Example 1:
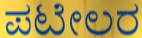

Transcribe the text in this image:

ಪಟೇಲರ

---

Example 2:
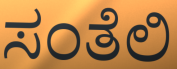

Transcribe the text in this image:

ಸಂತೆಲಿ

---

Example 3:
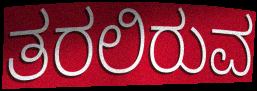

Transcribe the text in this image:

ತರಲಿರುವ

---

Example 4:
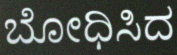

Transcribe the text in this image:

ಬೋಧಿಸಿದ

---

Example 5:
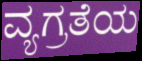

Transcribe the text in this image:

ವ್ಯಗ್ರತೆಯ